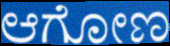
ಆಗೋಣ